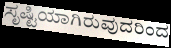
ಸೃಷ್ಟಿಯಾಗಿರುವುದರಿಂದ